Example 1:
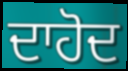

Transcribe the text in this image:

ਦਾਹੋਦ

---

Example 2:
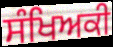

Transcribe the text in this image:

ਸੰਖਿਅਕੀ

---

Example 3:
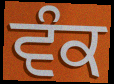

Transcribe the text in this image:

ਵੰਕ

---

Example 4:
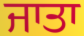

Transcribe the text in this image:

ਜਾਤਾ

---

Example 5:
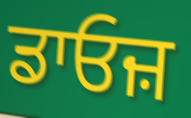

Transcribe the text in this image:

ਡਾਓਜ਼